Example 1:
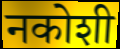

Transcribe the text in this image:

नकोशी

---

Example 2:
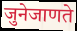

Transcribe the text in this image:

जुनेजाणते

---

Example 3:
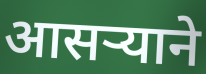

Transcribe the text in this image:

आसर्‍याने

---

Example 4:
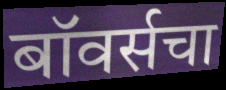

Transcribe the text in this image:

बॉवर्सचा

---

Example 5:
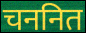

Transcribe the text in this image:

चननित